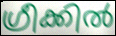
ഗ്രീക്കിൽ